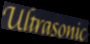
Ultrasonic